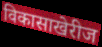
विकासाखेरीज